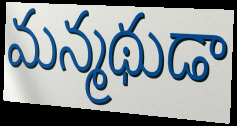
మన్మథుడా